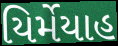
યિર્મેયાહ